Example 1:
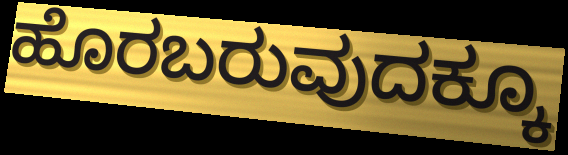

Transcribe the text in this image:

ಹೊರಬರುವುದಕ್ಕೂ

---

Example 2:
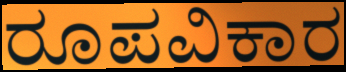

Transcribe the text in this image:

ರೂಪವಿಕಾರ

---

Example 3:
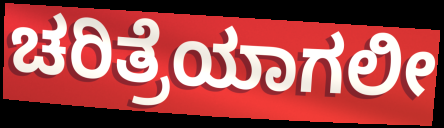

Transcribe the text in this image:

ಚರಿತ್ರೆಯಾಗಲೀ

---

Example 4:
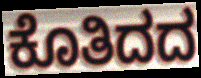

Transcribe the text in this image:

ಕೊತಿದದ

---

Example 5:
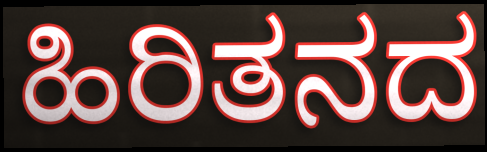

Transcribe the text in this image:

ಹಿರಿತನದ